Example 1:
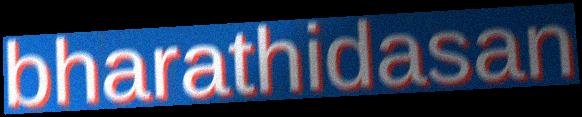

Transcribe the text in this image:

bharathidasan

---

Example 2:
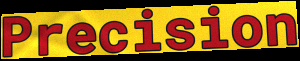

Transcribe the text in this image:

Precision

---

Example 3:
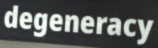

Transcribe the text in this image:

degeneracy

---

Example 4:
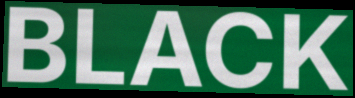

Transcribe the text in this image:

BLACK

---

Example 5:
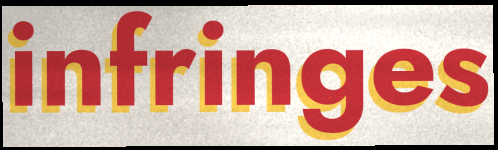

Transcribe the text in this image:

infringes